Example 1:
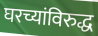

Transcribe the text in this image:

घरच्यांविरुद्ध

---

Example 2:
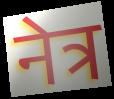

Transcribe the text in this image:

नेत्र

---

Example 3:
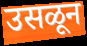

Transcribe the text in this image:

उसळून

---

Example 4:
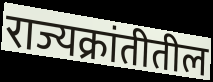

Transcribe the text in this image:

राज्यक्रांतीतील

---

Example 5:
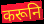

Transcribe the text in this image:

करूनि